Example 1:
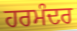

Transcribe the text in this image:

ਹਰਮੰਦਰ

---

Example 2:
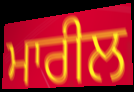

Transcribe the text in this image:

ਮਾਰੀਲ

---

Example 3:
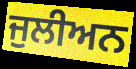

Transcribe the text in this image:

ਜੁਲੀਅਨ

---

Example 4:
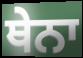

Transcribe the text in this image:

ਥੇਨਾ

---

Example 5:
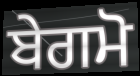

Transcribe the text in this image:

ਬੇਗਮੋ